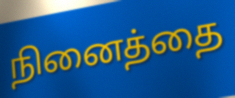
நினைத்தை